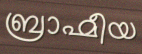
ബ്രാഹ്മീയ